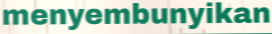
menyembunyikan